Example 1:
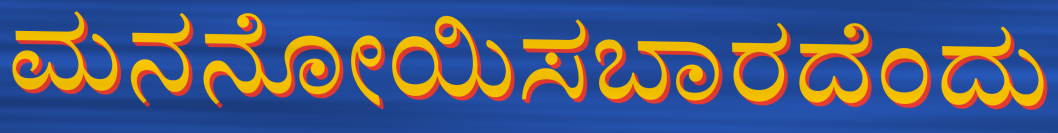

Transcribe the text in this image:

ಮನನೋಯಿಸಬಾರದೆಂದು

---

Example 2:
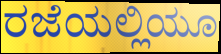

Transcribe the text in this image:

ರಜೆಯಲ್ಲಿಯೂ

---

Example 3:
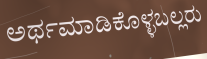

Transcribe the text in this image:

ಅರ್ಥಮಾಡಿಕೊಳ್ಳಬಲ್ಲರು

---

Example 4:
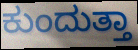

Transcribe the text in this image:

ಕುಂದುತ್ತಾ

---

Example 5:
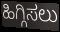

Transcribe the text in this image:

ಹಿಗ್ಗಿಸಲು